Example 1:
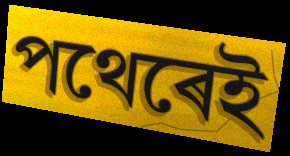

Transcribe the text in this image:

পথেৰেই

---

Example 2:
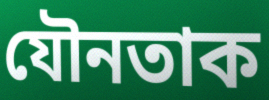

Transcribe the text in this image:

যৌনতাক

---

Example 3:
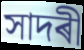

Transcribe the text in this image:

সাদৰী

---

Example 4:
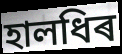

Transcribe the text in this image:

হালধিৰ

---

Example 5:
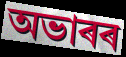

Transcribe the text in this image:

অভাৰৰ